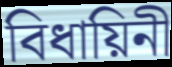
বিধায়িনী